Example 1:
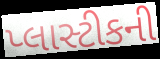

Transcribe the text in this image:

પ્લાસ્ટીકની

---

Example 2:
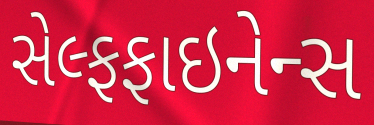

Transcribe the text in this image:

સેલ્ફફાઇનેન્સ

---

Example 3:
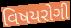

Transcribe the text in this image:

વિષયરોગી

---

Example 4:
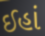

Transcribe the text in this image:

ઈહાં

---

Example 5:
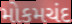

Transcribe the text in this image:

મોકમચંદ